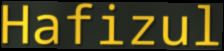
Hafizul